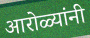
आरोळ्यांनी